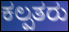
ಕಲ್ಪತರು